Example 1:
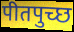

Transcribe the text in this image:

पीतपुच्छ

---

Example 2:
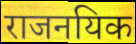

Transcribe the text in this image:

राजनयिक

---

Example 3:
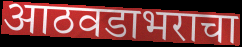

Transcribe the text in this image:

आठवडाभराचा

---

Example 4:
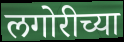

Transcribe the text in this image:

लगोरीच्या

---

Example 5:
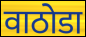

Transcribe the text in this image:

वाठोडा